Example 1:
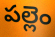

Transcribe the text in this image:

పల్లెం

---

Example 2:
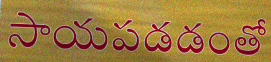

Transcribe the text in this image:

సాయపడడంతో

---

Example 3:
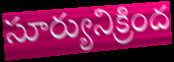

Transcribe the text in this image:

సూర్యునిక్రింద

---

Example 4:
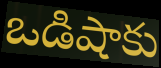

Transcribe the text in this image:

ఒడిషాకు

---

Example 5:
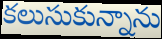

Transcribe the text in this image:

కలుసుకున్నాను